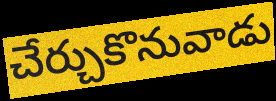
చేర్చుకొనువాడు